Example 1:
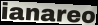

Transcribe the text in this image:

ianareo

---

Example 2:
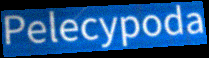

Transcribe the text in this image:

Pelecypoda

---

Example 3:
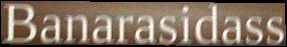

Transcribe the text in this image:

Banarasidass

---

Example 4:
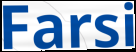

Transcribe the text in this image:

Farsi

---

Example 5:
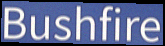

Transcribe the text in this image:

Bushfire